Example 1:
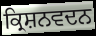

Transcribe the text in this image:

ਕ੍ਰਿਸ਼ਨਵਦਨ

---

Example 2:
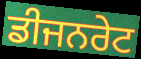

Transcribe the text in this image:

ਡੀਜਨਰੇਟ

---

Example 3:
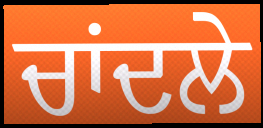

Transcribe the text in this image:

ਚਾਂਦਲੇ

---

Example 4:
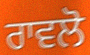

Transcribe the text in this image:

ਰਾਵਲੋ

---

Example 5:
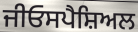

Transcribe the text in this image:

ਜੀਓਸਪੈਸ਼ਿਅਲ